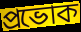
প্রভোক